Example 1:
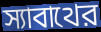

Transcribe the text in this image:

স্যাবাথের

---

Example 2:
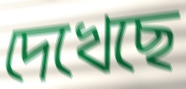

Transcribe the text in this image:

দেখেছে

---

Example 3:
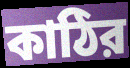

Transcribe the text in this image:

কাঠির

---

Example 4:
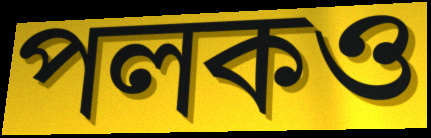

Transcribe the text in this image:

পলকও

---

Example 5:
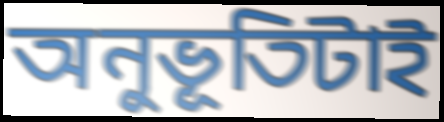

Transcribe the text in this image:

অনুভূতিটাই